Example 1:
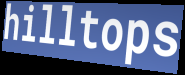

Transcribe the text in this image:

hilltops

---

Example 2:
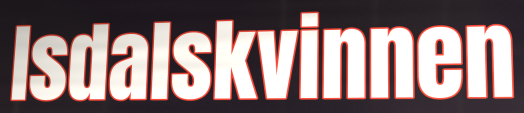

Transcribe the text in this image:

Isdalskvinnen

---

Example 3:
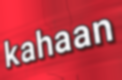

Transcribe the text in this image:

kahaan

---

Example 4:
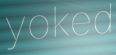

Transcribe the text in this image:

yoked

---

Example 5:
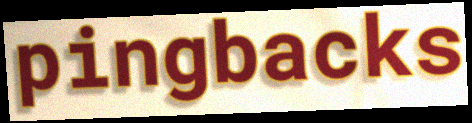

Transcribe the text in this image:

pingbacks